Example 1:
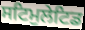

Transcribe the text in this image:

ਸਟਿਮੁਲੇਟਿਡ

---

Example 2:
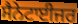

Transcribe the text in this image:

ਸੈਨੇਟਾਈਜਰ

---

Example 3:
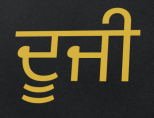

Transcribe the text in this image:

ਦੂਜੀ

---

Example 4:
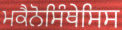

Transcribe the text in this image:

ਮਕੈਨੋਸਿੰਥੇਸਿਸ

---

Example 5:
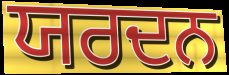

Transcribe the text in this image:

ਯਰਦਨ